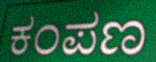
ಕಂಪಣ